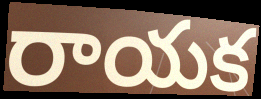
రాయక